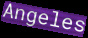
Angeles